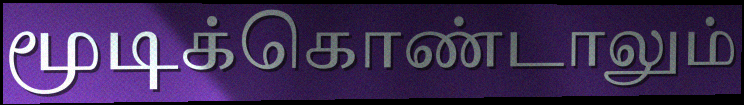
மூடிக்கொண்டாலும்